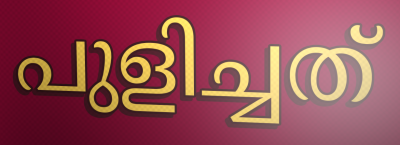
പുളിച്ചത്